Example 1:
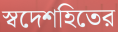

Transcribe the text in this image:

স্বদেশহিতের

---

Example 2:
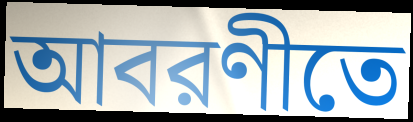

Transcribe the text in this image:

আবরণীতে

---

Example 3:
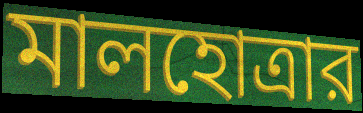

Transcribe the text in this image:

মালহোত্রার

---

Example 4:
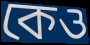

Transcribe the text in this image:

কেও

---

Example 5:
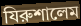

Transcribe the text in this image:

যিরুশালেম